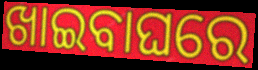
ଖାଇବାଘରେ